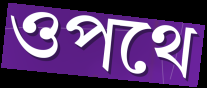
ওপথে